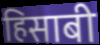
हिसाबी